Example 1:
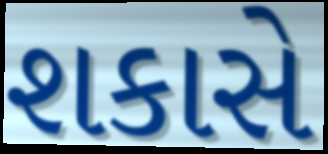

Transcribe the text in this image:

શકાસે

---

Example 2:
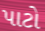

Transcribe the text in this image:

પાટો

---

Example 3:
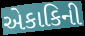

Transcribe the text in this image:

એકાકિની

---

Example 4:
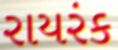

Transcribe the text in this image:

રાયરંક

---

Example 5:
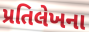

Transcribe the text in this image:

પ્રતિલેખના